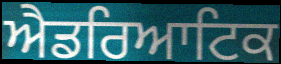
ਐਡਰਿਆਟਿਕ